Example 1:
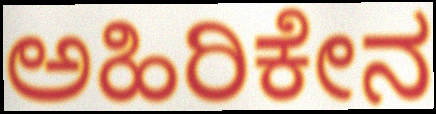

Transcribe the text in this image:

ಅಹಿರಿಕೇನ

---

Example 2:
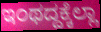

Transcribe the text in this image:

ಇಂಥದ್ದಕ್ಕೆಲ್ಲಾ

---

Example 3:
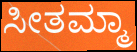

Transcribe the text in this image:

ಸೀತಮ್ಮಾ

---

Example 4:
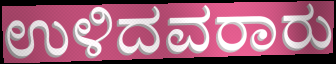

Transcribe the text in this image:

ಉಳಿದವರಾರು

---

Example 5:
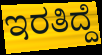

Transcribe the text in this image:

ಇರತಿದ್ದೆ